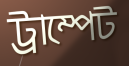
ট্ৰাম্পেট